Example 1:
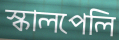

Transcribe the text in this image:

স্কালপেলি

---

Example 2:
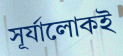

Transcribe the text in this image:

সূর্যালোকই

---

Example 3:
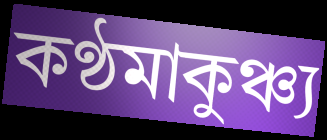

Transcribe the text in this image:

কণ্ঠমাকুঞ্চ্য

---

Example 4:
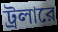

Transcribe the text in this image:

ট্রলারে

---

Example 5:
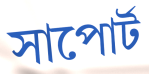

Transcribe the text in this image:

সাপোর্ট